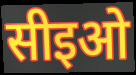
सीइओ